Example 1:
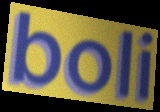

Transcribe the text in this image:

boli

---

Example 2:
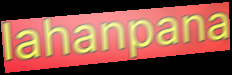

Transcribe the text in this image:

lahanpana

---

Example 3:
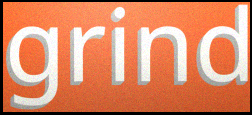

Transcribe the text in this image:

grind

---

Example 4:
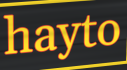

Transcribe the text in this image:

hayto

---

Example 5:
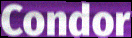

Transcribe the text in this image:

Condor